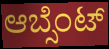
ಆಬ್ಸೆಂಟ್